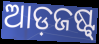
ଆଡ଼ଜଷ୍ଟ୍